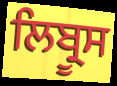
ਲਿਬ੍ਰੂਸ